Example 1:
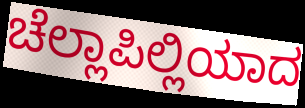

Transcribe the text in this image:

ಚೆಲ್ಲಾಪಿಲ್ಲಿಯಾದ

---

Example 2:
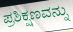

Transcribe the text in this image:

ಪ್ರಶಿಕ್ಷಣವನ್ನು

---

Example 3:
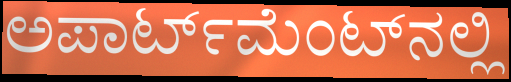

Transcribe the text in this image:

ಅಪಾರ್ಟ್‌ಮೆಂಟ್‌ನಲ್ಲಿ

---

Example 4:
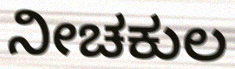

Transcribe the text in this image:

ನೀಚಕುಲ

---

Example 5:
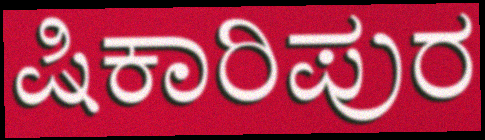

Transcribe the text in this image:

ಷಿಕಾರಿಪುರ